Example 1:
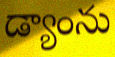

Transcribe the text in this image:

డ్యాంను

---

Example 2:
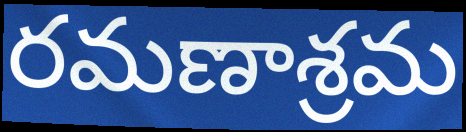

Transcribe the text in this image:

రమణాశ్రమ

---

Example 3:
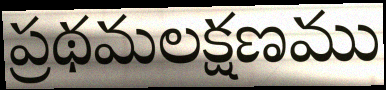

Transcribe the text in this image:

ప్రథమలక్షణము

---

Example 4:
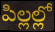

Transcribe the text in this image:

పిల్లల్లో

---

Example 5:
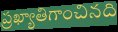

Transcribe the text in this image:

ప్రఖ్యాతిగాంచినది